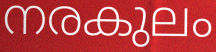
നരകുലം